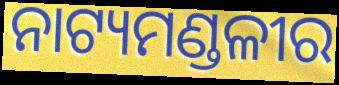
ନାଟ୍ୟମଣ୍ଡଳୀର